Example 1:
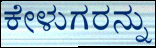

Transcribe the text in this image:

ಕೇಳುಗರನ್ನು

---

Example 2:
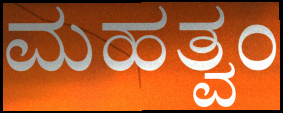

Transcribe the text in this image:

ಮಹತ್ವಂ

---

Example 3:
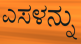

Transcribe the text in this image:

ಎಸಳನ್ನು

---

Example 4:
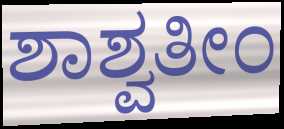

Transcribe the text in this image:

ಶಾಶ್ವತೀಂ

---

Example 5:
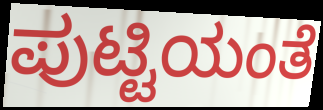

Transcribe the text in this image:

ಪುಟ್ಟಿಯಂತೆ